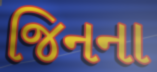
જિનના